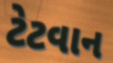
ટેટવાન